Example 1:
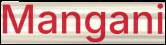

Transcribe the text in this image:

Mangani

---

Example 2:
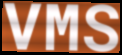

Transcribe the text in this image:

VMS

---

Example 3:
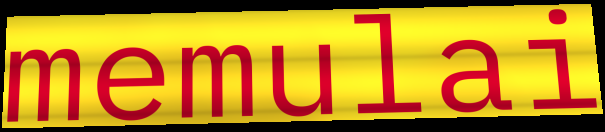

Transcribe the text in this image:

memulai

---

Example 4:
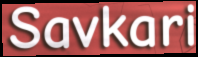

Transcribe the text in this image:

Savkari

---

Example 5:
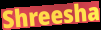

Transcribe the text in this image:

Shreesha